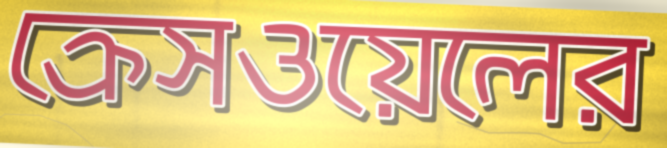
ক্রেসওয়েলের